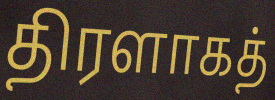
திரளாகத்